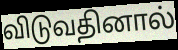
விடுவதினால்